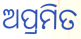
ଅପ୍ରମିତ